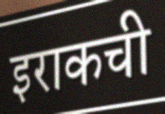
इराकची